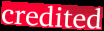
credited